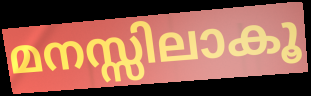
മനസ്സിലാകൂ